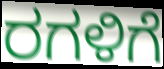
ರಗಳಿಗೆ